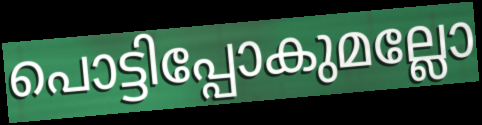
പൊട്ടിപ്പോകുമല്ലോ